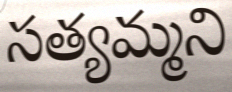
సత్యమ్మని